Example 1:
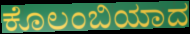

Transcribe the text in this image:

ಕೊಲಂಬಿಯಾದ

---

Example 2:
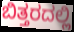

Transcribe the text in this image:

ಬಿತ್ತರದಲ್ಲಿ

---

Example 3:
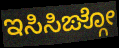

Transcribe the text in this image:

ಇಸಿಸಿಙ್ಗೋ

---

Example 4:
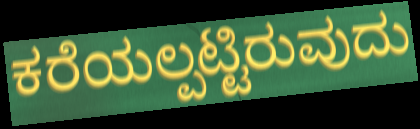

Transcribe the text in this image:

ಕರೆಯಲ್ಪಟ್ಟಿರುವುದು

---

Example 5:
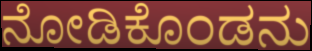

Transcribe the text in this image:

ನೋಡಿಕೊಂಡನು